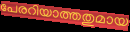
പേരറിയാത്തതുമായ